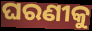
ଘରଣୀକୁ